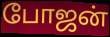
போஜன்